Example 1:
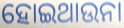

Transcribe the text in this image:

ହୋଇଥାଉନା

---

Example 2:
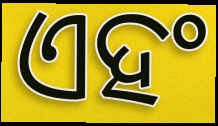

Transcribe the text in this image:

ଏହଂ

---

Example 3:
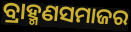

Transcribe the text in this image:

ବ୍ରାହ୍ମଣସମାଜର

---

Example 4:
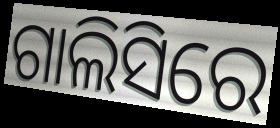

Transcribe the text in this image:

ଗାଲିସିରେ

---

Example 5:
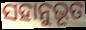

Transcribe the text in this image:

ସହାନୁଭୂତ